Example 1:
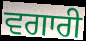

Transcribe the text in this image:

ਵਗਾਰੀ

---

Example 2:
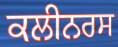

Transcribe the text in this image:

ਕਲੀਨਰਸ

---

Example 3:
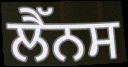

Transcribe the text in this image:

ਲੈੱਨਸ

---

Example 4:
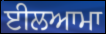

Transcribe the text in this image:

ਈਲਆਮਾ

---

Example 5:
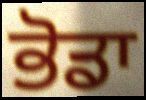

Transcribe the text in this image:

ਭੋਡਾ